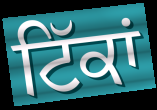
ਟਿੱਕਾਂ